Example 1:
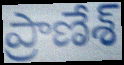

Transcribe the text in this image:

ప్రాణేశ్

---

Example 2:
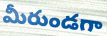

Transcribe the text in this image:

మీరుండగా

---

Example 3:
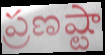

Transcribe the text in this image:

ప్రణష్టా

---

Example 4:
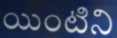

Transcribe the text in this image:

యింటిని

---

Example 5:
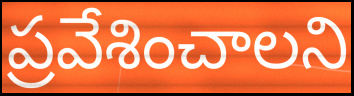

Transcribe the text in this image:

ప్రవేశించాలని